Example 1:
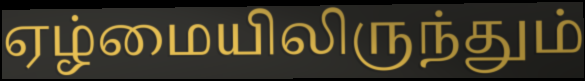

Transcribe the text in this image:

ஏழ்மையிலிருந்தும்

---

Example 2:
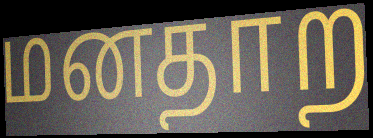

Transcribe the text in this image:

மனதாற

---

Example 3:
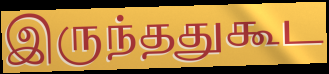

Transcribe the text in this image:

இருந்ததுகூட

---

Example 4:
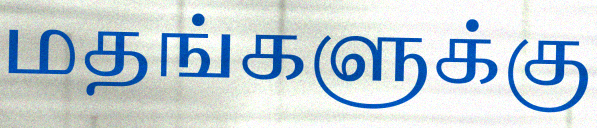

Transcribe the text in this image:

மதங்களுக்கு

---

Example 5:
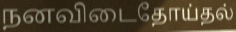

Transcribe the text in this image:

நனவிடைதோய்தல்